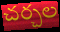
చర్చల